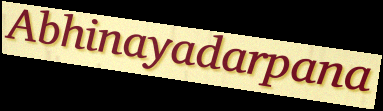
Abhinayadarpana